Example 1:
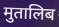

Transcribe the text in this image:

मुतालिब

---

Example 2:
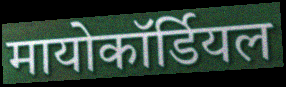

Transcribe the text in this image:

मायोकॉर्डियल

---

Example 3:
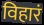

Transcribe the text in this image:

विहारं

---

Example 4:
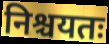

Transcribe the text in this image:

निश्चयतः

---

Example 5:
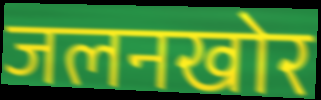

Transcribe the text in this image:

जलनखोर